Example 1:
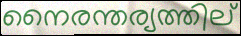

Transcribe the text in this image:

നൈരന്തര്യത്തില്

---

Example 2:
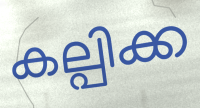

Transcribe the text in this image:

കല്പിക്ക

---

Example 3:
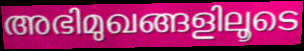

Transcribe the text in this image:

അഭിമുഖങ്ങളിലൂടെ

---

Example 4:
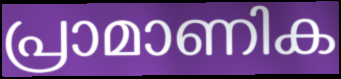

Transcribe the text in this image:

പ്രാമാണിക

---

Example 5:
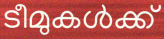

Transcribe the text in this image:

ടീമുകൾക്ക്